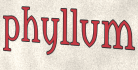
phyllum